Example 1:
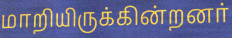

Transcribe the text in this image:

மாறியிருக்கின்றனர்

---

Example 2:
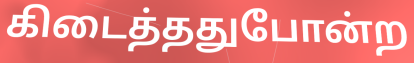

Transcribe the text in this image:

கிடைத்ததுபோன்ற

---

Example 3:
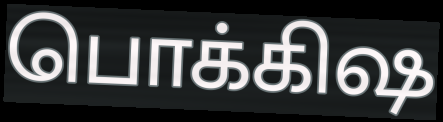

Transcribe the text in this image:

பொக்கிஷ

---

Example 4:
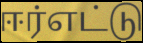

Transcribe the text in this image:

ஈர்எட்டு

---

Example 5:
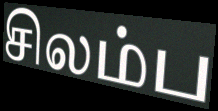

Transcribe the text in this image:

சிலம்ப